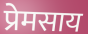
प्रेमसाय